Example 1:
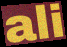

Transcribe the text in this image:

ali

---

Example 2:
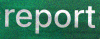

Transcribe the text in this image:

report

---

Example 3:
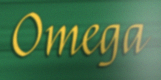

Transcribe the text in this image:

Omega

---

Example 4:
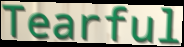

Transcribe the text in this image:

Tearful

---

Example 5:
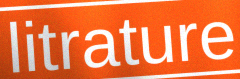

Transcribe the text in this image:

litrature